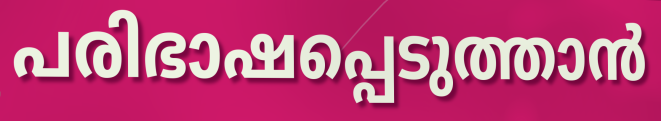
പരിഭാഷപ്പെടുത്താൻ